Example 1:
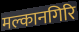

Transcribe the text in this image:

मल्कानगिरि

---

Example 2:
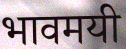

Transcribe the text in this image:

भावमयी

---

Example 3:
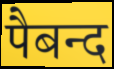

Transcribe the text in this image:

पैबन्द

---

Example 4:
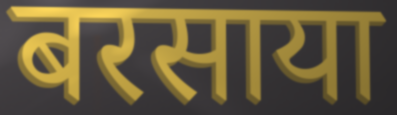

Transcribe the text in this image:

बरसाया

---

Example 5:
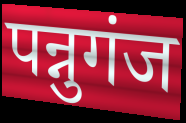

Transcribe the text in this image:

पन्नुगंज